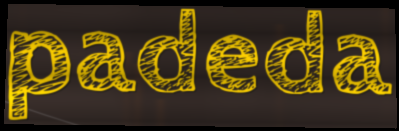
padeda